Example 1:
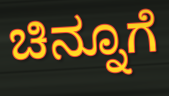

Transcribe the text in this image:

ಚಿನ್ನೂಗೆ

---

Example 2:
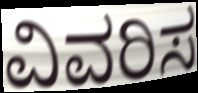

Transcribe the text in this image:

ವಿವರಿಸ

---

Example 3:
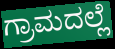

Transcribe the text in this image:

ಗ್ರಾಮದಲ್ಲೆ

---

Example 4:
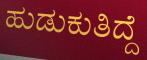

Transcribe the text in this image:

ಹುಡುಕುತಿದ್ದೆ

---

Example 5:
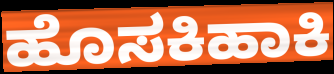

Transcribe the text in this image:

ಹೊಸಕಿಹಾಕಿ